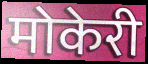
मोकेरी